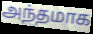
அந்தமாக